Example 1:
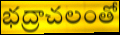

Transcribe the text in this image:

భద్రాచలంతో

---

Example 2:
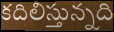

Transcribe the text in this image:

కదిలిస్తున్నది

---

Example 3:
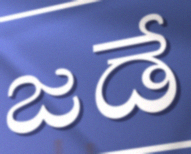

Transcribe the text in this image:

జడే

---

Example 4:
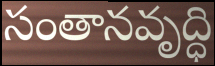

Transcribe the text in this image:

సంతానవృద్ధి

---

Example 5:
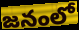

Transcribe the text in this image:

జనంలో